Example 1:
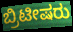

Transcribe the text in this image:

ಬ್ರಿಟೀಷರು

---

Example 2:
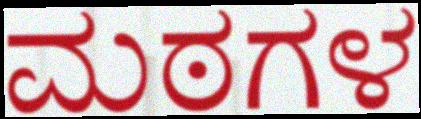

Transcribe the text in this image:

ಮಠಗಳ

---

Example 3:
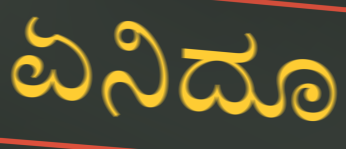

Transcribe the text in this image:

ಏನಿದೂ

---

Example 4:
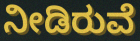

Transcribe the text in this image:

ನೀಡಿರುವೆ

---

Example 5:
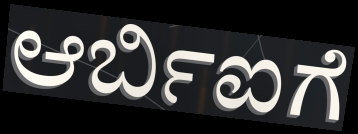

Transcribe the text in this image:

ಆರ್ಬಿಐಗೆ